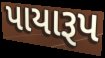
પાયારૂપ